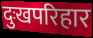
दुःखपरिहार